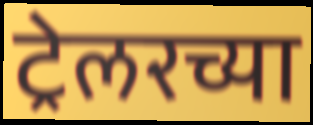
ट्रेलरच्या